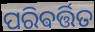
ପରିଵର୍ତ୍ତିତ